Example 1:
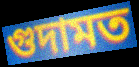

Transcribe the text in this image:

গুদামত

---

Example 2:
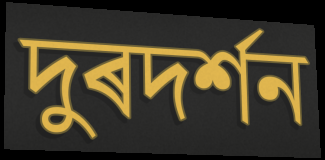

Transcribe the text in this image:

দুৰদৰ্শন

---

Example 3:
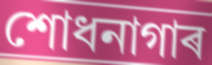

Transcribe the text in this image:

শোধনাগাৰ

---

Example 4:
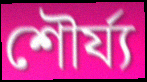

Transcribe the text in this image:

শৌৰ্য্য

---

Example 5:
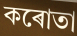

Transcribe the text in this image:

কৰোতা